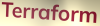
Terraform